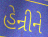
હેન્રીને